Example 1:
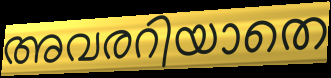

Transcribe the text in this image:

അവരറിയാതെ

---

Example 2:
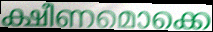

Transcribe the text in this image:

ക്ഷീണമൊക്കെ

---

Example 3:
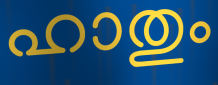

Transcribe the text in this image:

ഹാതും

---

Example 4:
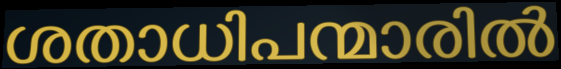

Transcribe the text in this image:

ശതാധിപന്മാരിൽ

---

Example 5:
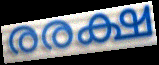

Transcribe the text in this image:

രരക്ഷ